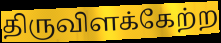
திருவிளக்கேற்ற